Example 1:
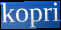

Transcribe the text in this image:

kopri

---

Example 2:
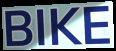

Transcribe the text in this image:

BIKE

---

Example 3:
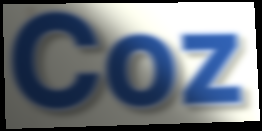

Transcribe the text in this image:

Coz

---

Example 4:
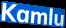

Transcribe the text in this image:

Kamlu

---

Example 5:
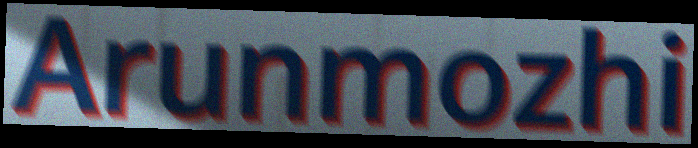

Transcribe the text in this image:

Arunmozhi